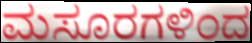
ಮಸೂರಗಳಿಂದ